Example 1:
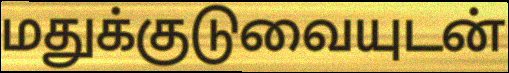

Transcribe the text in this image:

மதுக்குடுவையுடன்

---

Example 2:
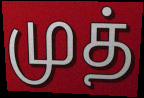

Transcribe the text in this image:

முத்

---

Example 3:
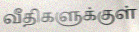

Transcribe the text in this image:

வீதிகளுக்குள்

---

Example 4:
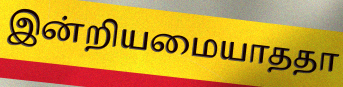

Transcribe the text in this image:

இன்றியமையாததா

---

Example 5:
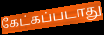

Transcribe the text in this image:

கேட்கப்படாது